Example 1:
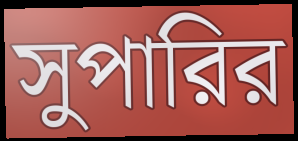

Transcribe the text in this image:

সুপারির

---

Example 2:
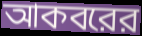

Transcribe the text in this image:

আকবরের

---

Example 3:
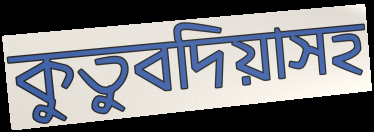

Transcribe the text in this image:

কুতুবদিয়াসহ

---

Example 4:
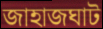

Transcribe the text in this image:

জাহাজঘাট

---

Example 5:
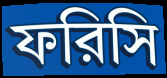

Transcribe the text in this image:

ফরিসি